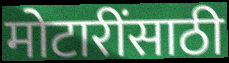
मोटारींसाठी